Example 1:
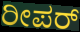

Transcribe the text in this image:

ರೀಪರ್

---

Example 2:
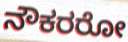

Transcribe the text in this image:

ನೌಕರರೋ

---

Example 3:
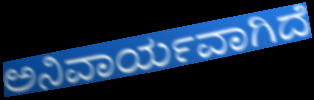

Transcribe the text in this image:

ಅನಿವಾರ್ಯವಾಗಿದೆ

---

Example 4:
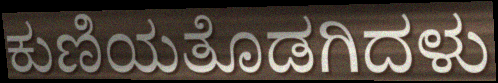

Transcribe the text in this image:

ಕುಣಿಯತೊಡಗಿದಳು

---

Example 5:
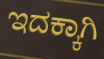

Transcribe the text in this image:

ಇದಕ್ಕಾಗಿ